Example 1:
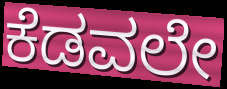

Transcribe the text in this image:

ಕೆಡವಲೇ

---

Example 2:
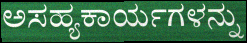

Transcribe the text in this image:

ಅಸಹ್ಯಕಾರ್ಯಗಳನ್ನು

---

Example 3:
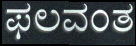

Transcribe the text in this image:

ಫಲವಂತ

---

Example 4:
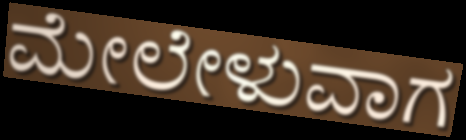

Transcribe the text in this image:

ಮೇಲೇಳುವಾಗ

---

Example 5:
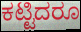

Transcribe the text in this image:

ಕಟ್ಟಿದರೂ